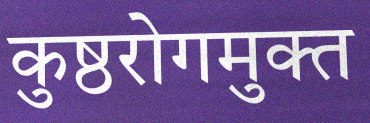
कुष्ठरोगमुक्त